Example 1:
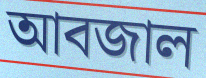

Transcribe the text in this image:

আবজাল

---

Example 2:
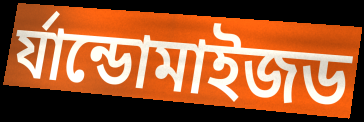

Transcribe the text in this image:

র্যান্ডোমাইজড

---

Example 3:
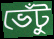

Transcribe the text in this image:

ভেঁটু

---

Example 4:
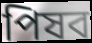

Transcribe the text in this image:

পিষব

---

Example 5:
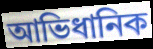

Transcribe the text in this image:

আভিধানিক